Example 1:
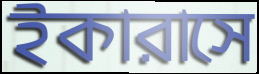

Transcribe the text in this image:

ইকারাসে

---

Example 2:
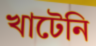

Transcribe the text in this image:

খাটেনি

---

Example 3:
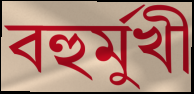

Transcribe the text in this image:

বহুর্মুখী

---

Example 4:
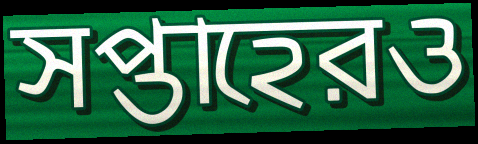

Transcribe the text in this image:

সপ্তাহেরও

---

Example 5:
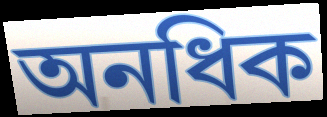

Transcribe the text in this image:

অনধিক